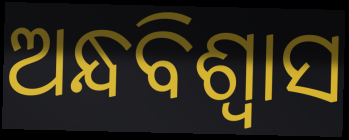
ଅନ୍ଧବିଶ୍ବାସ